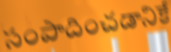
సంపాదించడానికే